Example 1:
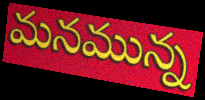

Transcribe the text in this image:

మనమున్న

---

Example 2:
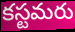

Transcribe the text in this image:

కస్టమరు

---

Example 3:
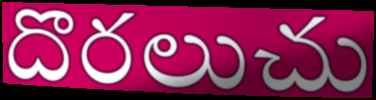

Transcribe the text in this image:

దొరలుచు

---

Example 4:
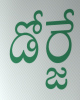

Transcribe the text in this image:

డోర్జే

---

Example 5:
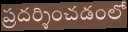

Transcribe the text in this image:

ప్రదర్శించడంలో